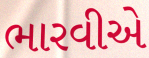
ભારવીએ